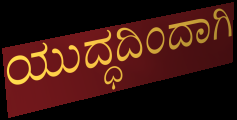
ಯುದ್ಧದಿಂದಾಗಿ